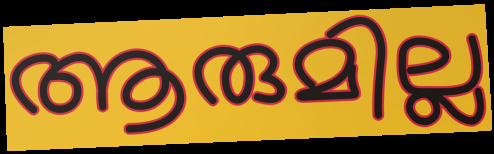
ആരുമില്ല